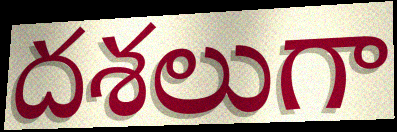
దశలుగా